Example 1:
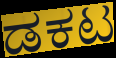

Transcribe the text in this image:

ಡಕಟ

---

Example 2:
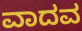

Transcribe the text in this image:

ವಾದವ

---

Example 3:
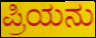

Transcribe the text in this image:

ಪ್ರಿಯನು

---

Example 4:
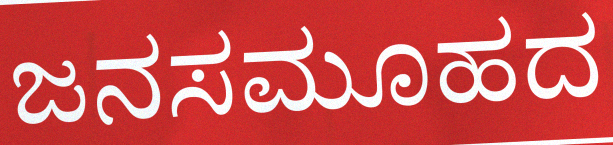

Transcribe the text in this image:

ಜನಸಮೂಹದ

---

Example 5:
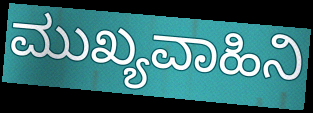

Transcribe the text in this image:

ಮುಖ್ಯವಾಹಿನಿ